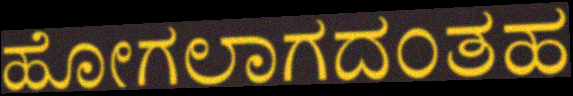
ಹೋಗಲಾಗದಂತಹ